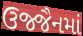
ઉજ્જૈનમાં